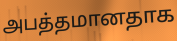
அபத்தமானதாக